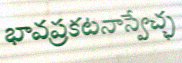
భావప్రకటనాస్వేచ్ఛ